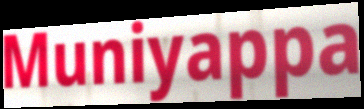
Muniyappa